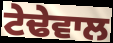
ਟੇਢੇਵਾਲ